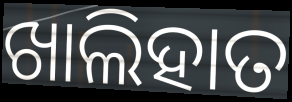
ଖାଲିହାତ